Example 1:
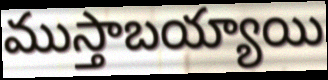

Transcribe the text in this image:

ముస్తాబయ్యాయి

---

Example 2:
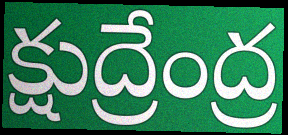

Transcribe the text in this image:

క్షుద్రేంద్ర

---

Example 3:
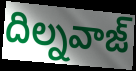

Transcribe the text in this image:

దిల్నవాజ్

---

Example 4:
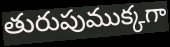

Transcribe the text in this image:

తురుపుముక్కగా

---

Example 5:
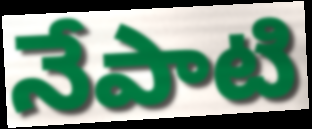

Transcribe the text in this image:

నేపాటి